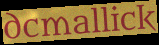
dcmallick